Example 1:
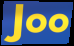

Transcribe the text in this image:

Joo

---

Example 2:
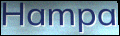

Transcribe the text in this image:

Hampa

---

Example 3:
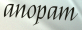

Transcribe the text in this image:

anopam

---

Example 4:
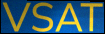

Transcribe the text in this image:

VSAT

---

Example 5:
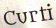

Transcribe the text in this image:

Curti